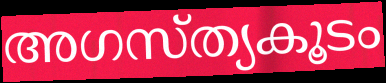
അഗസ്ത്യകൂടം